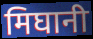
मिघानी